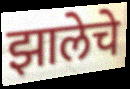
झालेचे